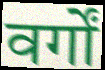
वर्गों